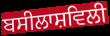
ਬਸੀਲਾਸ਼ਵਿਲੀ